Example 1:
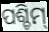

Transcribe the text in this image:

ପଶ୍ଚିମ୍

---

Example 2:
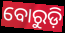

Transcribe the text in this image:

ବୋରୁଡ଼ି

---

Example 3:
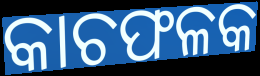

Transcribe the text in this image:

କାଚଫଳକ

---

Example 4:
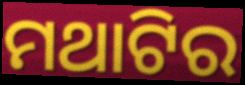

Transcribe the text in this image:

ମଥାଟିର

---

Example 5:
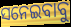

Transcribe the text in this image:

ସନେଇବାବୁ